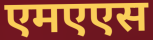
एमएएस